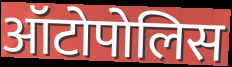
ऑटोपोलिस